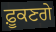
ਫ਼ੂਕਣਗੇ